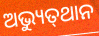
ଅଭ୍ୟୁତ୍‌ଥାନ